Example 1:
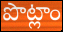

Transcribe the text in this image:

పొట్లాం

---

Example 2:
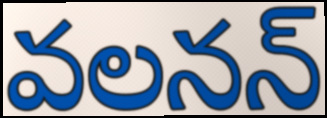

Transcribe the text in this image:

వలనన్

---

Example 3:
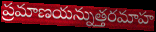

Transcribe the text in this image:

ప్రమాణయన్నుత్తరమాహ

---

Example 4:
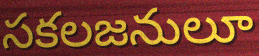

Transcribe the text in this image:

సకలజనులూ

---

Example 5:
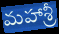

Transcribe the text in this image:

మహాశ్రీ